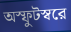
অস্ফুটস্বরে